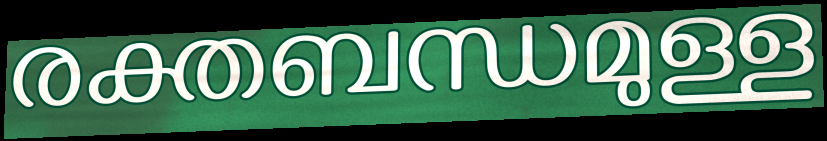
രക്തബന്ധമുള്ള